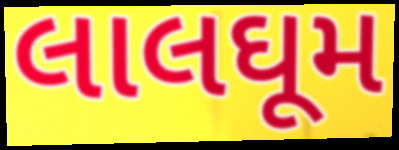
લાલઘૂમ